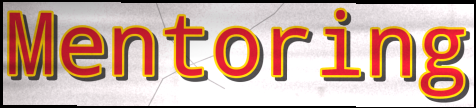
Mentoring